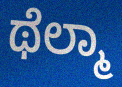
ಥೆಲ್ಮಾ